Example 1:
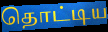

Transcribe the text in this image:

தொட்டிய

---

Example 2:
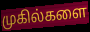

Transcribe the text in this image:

முகில்களை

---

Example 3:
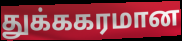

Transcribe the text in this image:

துக்ககரமான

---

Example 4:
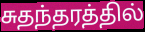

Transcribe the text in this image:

சுதந்தரத்தில்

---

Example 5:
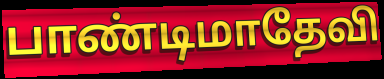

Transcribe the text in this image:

பாண்டிமாதேவி